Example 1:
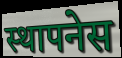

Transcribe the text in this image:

स्थापनेस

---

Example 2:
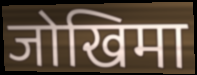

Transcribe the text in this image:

जोखिमा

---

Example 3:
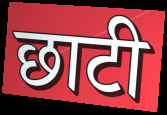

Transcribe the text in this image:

छाटी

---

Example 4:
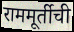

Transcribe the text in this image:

राममूर्तीची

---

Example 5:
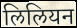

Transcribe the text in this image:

लिलियन